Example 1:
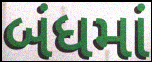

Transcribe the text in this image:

બંધમાં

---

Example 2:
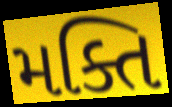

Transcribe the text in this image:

મક્તિ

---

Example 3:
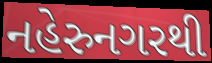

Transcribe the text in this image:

નહેરુનગરથી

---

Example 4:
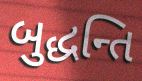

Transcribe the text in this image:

બુદ્ધન્તિ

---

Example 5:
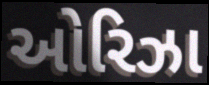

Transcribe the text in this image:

ઓરિઝા